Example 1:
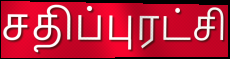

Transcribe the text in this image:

சதிப்புரட்சி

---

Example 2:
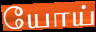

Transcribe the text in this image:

யோய்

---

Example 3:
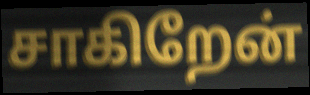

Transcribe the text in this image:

சாகிறேன்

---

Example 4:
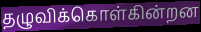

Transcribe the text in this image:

தழுவிக்கொள்கின்றன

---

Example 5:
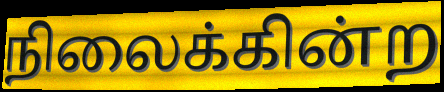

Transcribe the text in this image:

நிலைக்கின்ற